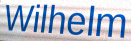
Wilhelm